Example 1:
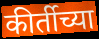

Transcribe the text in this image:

कीर्तीच्या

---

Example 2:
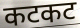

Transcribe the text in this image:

कटकट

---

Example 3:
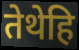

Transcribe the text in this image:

तेथेहि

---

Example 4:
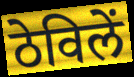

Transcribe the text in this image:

ठेविलें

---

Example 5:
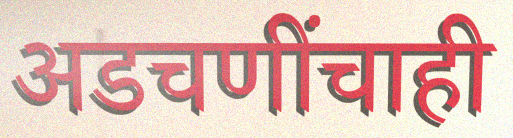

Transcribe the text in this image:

अडचणींचाही